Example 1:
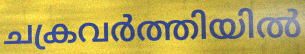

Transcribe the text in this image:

ചക്രവർത്തിയിൽ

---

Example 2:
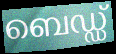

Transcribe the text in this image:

ബെഡ്ഡ്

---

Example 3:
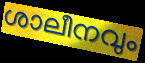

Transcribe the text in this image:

ശാലീനവും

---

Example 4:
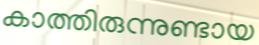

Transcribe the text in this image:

കാത്തിരുന്നുണ്ടായ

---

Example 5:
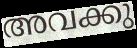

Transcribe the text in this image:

അവക്കു